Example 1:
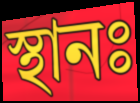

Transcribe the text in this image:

স্থানঃ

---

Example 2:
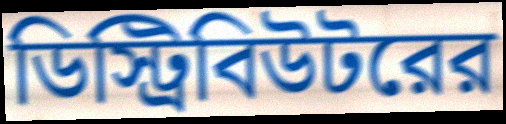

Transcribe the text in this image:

ডিস্ট্রিবিউটরের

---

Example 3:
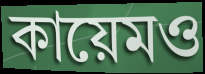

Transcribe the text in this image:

কায়েমও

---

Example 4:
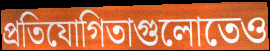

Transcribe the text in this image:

প্রতিযোগিতাগুলোতেও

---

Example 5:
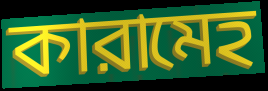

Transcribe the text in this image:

কারামেহ